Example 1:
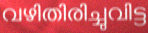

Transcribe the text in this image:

വഴിതിരിച്ചുവിട്ട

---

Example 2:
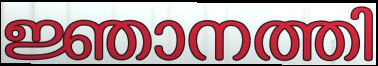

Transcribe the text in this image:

ജ്ഞാനത്തി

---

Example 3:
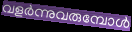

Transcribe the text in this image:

വളർന്നുവരുമ്പോൾ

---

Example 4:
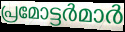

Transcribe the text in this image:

പ്രമോട്ടർമാർ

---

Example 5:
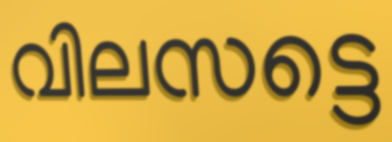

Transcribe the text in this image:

വിലസട്ടെ